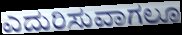
ಎದುರಿಸುವಾಗಲೂ